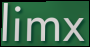
limx